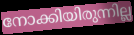
നോക്കിയിരുന്നില്ല